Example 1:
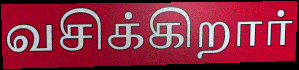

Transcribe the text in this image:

வசிக்கிறார்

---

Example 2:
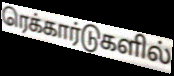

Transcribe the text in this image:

ரெக்கார்டுகளில்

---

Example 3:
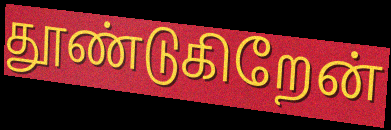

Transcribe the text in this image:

தூண்டுகிறேன்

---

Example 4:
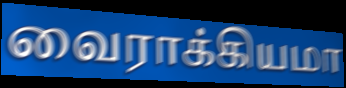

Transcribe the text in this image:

வைராக்கியமா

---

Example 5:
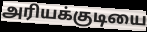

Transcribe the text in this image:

அரியக்குடியை